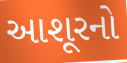
આશૂરનો